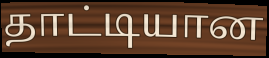
தாட்டியான